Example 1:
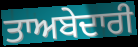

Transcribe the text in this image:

ਤਾਅਬੇਦਾਰੀ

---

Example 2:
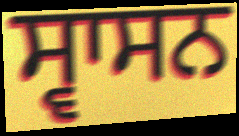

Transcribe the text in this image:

ਸ੍ਵਾਸਨ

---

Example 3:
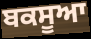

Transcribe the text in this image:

ਬਕਸੂਆ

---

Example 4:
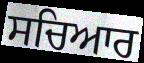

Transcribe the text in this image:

ਸਚਿਆਰ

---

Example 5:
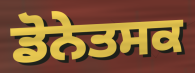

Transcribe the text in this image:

ਡੋਨੇਤਸਕ